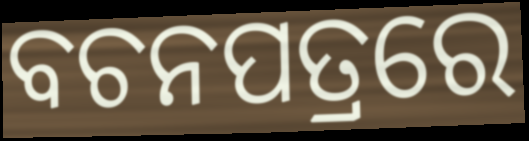
ବଚନପତ୍ରରେ